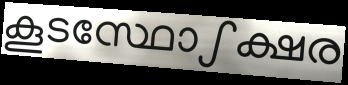
കൂടസ്ഥോഽക്ഷര